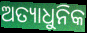
ଅତ୍ୟାଧୁନିକ